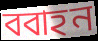
ববাহন